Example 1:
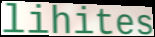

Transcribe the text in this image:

lihites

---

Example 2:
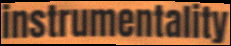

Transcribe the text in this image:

instrumentality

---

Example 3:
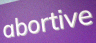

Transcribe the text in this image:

abortive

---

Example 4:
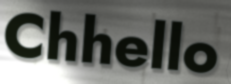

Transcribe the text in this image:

Chhello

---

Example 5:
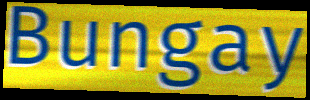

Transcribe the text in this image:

Bungay